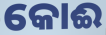
କୋଈ